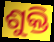
ଶୁକ୍ତି